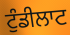
ਟੁੰਡੀਲਾਟ